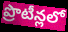
ప్రొటీన్లలో